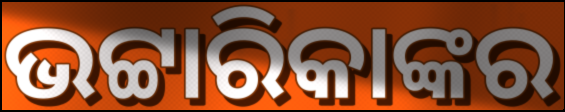
ଭଟ୍ଟାରିକାଙ୍କର